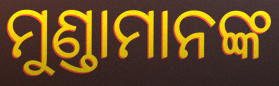
ମୁଣ୍ଡାମାନଙ୍କ